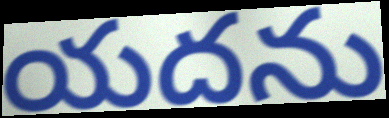
యదను